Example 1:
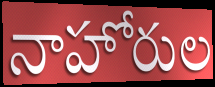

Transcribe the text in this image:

నాహోరుల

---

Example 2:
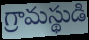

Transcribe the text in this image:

గ్రామస్థుడి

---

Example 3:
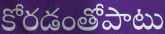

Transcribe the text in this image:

కోరడంతోపాటు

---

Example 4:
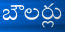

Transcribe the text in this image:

బౌలర్లు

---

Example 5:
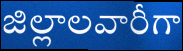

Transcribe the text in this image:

జిల్లాలవారీగా